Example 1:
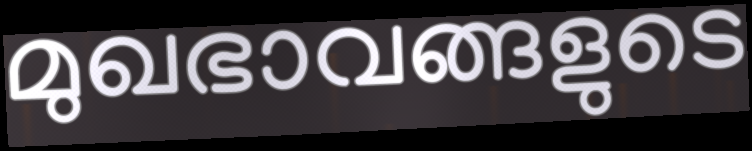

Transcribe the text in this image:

മുഖഭാവങ്ങളുടെ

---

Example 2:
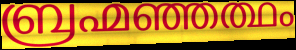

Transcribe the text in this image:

ബ്രഹ്മഞ്ഞത്ഥം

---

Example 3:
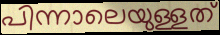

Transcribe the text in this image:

പിന്നാലെയുള്ളത്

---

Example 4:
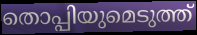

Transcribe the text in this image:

തൊപ്പിയുമെടുത്ത്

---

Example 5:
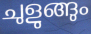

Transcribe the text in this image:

ചുളുങ്ങും